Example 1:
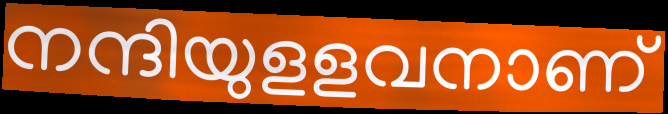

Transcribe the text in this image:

നന്ദിയുളളവനാണ്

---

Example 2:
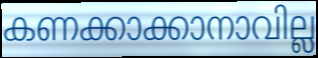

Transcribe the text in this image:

കണക്കാക്കാനാവില്ല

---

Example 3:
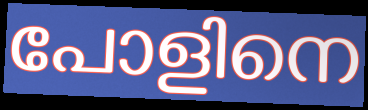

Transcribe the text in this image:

പോളിനെ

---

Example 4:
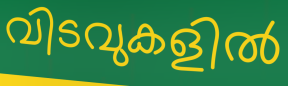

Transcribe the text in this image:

വിടവുകളിൽ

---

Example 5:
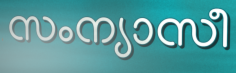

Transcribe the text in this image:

സംന്യാസീ